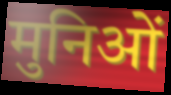
मुनिओं